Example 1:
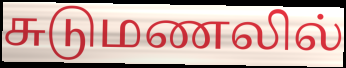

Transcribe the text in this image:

சுடுமணலில்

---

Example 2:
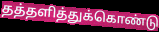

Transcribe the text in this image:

தத்தளித்துக்கொண்டு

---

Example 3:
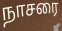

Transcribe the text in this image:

நாசரை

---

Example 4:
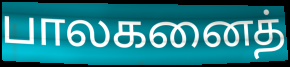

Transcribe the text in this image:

பாலகனைத்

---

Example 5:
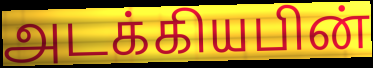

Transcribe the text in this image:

அடக்கியபின்